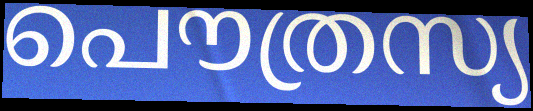
പൌത്രസ്യ